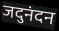
जदुनंदन